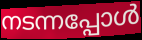
നടന്നപ്പോൾ